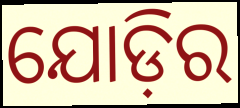
ଯୋଡ଼ିର